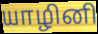
யாழினி